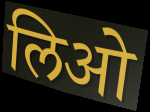
लिओ